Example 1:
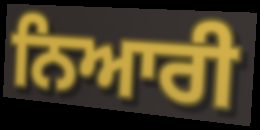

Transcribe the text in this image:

ਨਿਆਰੀ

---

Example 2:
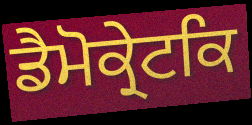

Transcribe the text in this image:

ਡੈਮੋਕ੍ਰੇਟਕਿ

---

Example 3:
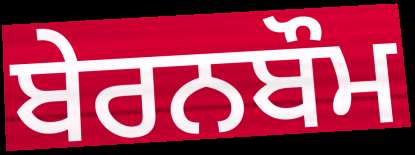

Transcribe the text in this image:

ਬੇਰਨਬੌਮ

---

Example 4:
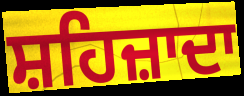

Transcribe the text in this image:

ਸ਼ਹਿਜ਼ਾਦਾ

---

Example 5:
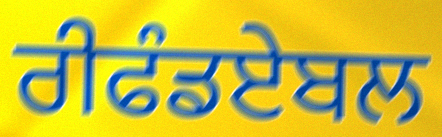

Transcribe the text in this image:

ਰੀਫੰਡਏਬਲ